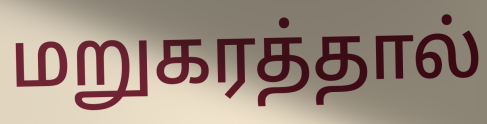
மறுகரத்தால்